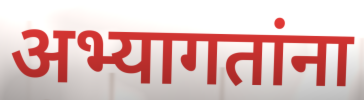
अभ्यागतांना